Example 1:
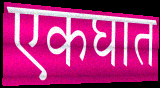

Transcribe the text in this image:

एकघात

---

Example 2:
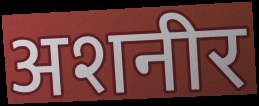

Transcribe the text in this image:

अशनीर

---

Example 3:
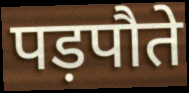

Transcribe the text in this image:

पड़पौते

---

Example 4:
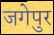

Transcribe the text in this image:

जगेपुर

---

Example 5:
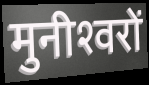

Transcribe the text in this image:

मुनीश्वरों